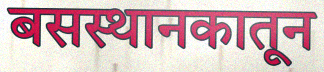
बसस्थानकातून